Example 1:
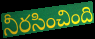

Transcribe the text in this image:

నీరసించింది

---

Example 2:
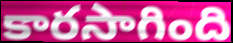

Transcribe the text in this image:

కారసాగింది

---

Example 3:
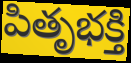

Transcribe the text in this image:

పితృభక్తి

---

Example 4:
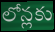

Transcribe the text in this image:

లోన్లకు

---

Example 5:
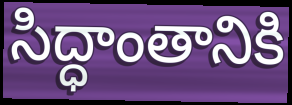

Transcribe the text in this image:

సిద్ధాంతానికి